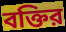
বক্তির